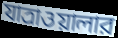
যাত্রাওয়ালার